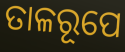
ତାଳରୂପେ